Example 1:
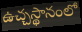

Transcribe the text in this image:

ఉచ్చస్థానంలో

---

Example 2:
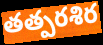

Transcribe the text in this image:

తత్పరశిర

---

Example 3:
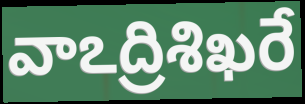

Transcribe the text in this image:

వాఽద్రిశిఖరే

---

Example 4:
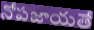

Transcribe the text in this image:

నోపజాయతే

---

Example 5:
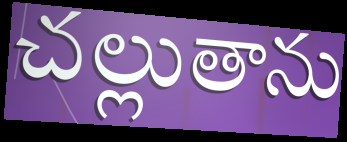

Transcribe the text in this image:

చల్లుతాను